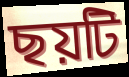
ছয়টি